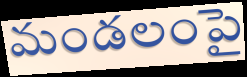
మండలంపై